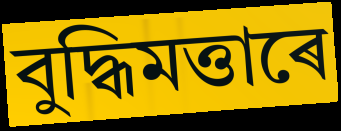
বুদ্ধিমত্তাৰে